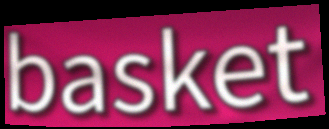
basket